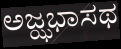
ಅಜ್ಝಭಾಸಥ